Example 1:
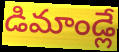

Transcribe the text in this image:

డిమాండ్లే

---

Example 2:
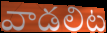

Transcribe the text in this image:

వాడలిట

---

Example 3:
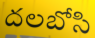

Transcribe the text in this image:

దలబోసి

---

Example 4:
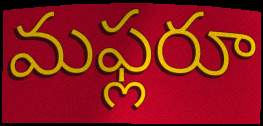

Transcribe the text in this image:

మఫ్లరూ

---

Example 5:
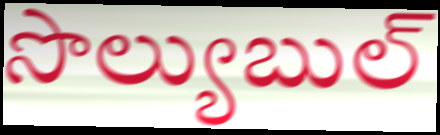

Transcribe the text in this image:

సొల్యుబుల్